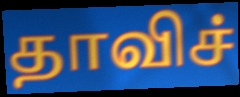
தாவிச்